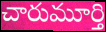
చారుమూర్తి